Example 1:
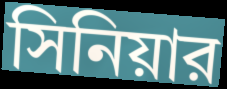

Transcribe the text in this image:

সিনিয়ার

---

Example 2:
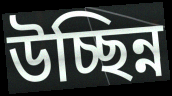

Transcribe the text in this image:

উচ্ছিন্ন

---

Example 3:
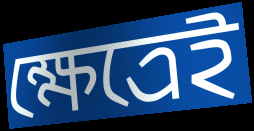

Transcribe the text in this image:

ক্ষেত্রেই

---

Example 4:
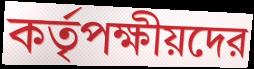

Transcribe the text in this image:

কর্তৃপক্ষীয়দের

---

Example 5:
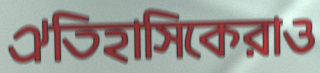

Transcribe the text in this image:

ঐতিহাসিকেরাও